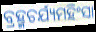
ବ୍ରହ୍ମଚର୍ଯ୍ୟମହିଂସା